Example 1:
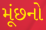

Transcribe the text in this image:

મૂંછનો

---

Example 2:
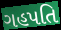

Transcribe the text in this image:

ગહપતિ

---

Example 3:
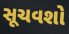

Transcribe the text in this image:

સૂચવશો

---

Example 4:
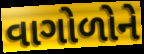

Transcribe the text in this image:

વાગોળોને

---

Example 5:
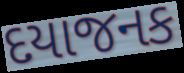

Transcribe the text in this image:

દયાજનક